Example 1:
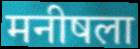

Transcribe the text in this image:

मनीषला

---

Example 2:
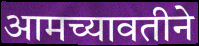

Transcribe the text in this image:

आमच्यावतीने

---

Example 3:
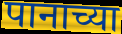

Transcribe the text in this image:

पानाच्या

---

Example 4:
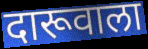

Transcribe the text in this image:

दारूवाला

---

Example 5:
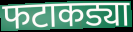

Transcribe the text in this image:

फटाकड्या